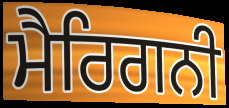
ਮੈਰਿਗਨੀ